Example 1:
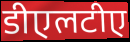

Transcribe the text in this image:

डीएलटीए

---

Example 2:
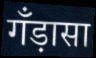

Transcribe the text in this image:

गँड़ासा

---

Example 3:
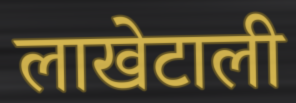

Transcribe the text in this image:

लाखेटाली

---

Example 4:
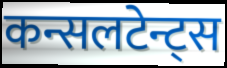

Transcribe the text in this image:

कन्सलटेन्ट्स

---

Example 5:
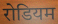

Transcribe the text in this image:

रोडियम